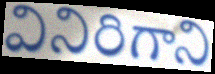
వినిరిగాని